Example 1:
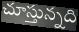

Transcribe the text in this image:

చూస్తున్నది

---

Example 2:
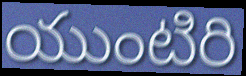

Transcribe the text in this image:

యుంటిరి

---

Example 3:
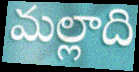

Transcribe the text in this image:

మల్లాది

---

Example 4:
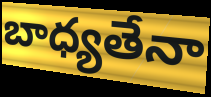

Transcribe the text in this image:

బాధ్యతేనా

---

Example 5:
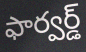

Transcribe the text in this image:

ఫార్వర్డ్